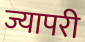
ज्यापरी